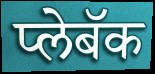
प्लेबॅक